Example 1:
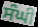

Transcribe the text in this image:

ਸੰਘੀ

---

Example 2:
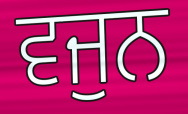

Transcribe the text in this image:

ਵਜੁਨ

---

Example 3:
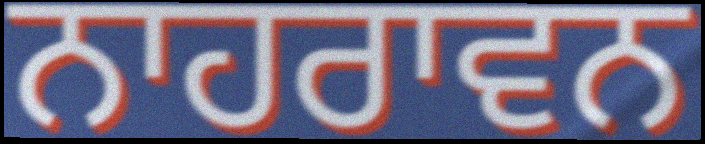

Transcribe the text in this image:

ਨਾਹਰਾਵਨ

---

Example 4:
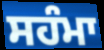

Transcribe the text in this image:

ਸਹੰਮਾ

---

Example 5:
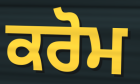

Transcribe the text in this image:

ਕਰੋਮ